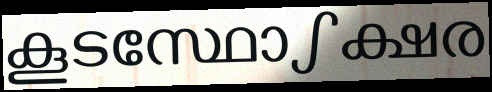
കൂടസ്ഥോഽക്ഷര